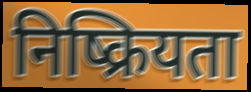
निष्क्रियता